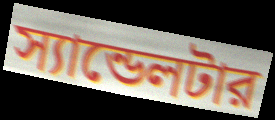
স্যান্ডেলটার